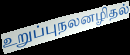
உறுப்புநலனழிதல்